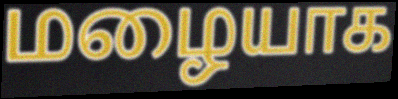
மழையாக